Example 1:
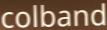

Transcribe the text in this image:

colband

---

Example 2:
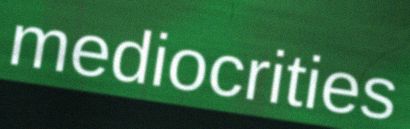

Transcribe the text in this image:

mediocrities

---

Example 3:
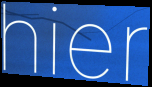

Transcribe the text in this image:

hier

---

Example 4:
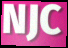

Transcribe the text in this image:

NJC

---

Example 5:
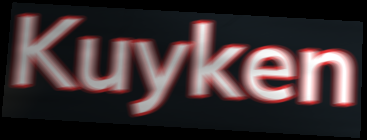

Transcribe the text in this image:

Kuyken